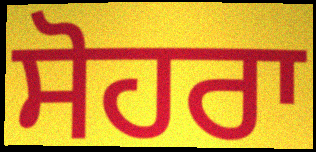
ਸੋਹਰਾ